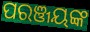
ପରଞ୍ଜୟଙ୍କ